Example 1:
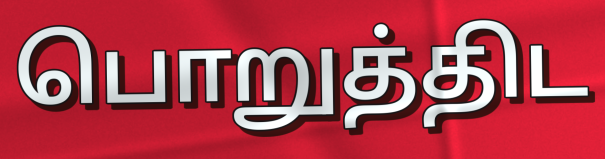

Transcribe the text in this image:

பொறுத்திட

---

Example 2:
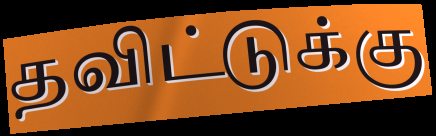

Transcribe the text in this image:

தவிட்டுக்கு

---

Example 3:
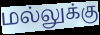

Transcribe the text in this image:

மல்லுக்கு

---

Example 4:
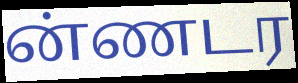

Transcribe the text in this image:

ன்ணடர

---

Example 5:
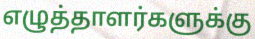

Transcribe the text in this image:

எழுத்தாளர்களுக்கு